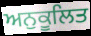
ਅਨੁਕੂਲਿਤ